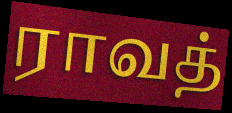
ராவத்